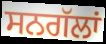
ਸਨਗੱਲਾਂ